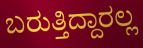
ಬರುತ್ತಿದ್ದಾರಲ್ಲ